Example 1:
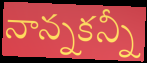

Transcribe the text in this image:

నాన్నకన్నీ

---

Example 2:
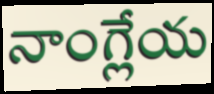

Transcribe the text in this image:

నాంగ్లేయ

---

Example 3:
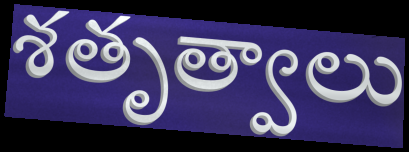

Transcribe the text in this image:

శతృత్వాలు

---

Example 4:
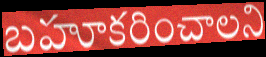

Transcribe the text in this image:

బహూకరించాలని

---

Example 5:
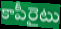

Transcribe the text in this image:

కాపీరైటు